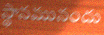
స్థానమునందు